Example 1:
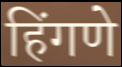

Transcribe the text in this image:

हिंगणे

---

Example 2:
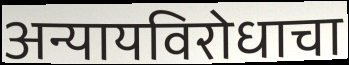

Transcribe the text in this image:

अन्यायविरोधाचा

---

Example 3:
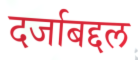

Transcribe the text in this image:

दर्जाबद्दल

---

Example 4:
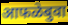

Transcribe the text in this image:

आफळेबुवा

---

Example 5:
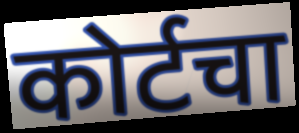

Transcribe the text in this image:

कोर्टचा